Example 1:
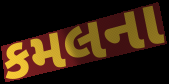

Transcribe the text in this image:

કમલના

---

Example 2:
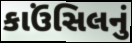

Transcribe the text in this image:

કાઉંસિલનું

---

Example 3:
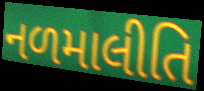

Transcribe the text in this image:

નળમાલીતિ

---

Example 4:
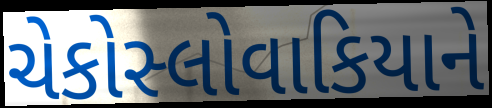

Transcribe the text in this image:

ચેકોસ્લોવાકિયાને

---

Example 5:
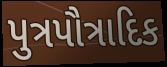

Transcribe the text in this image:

પુત્રપૌત્રાદિક